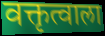
वक्तृत्वाला